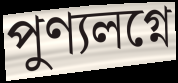
পুণ্যলগ্নে